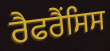
ਰੈਫਰੈਂਸਿਸ